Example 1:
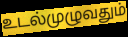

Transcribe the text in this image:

உடல்முழுவதும்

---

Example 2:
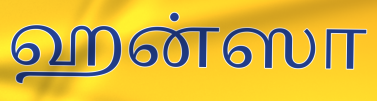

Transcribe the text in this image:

ஹன்ஸா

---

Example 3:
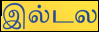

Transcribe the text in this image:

இல்டல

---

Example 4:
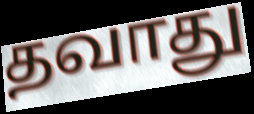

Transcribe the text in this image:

தவாது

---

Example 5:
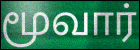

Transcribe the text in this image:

மூவார்